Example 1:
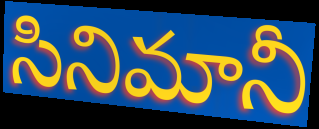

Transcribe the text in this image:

సినిమానీ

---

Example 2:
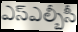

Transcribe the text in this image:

ఎస్ఎల్బీసీ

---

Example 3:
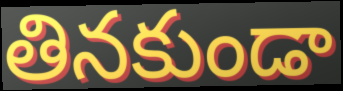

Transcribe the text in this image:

తినకుండా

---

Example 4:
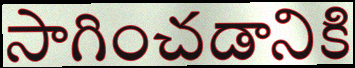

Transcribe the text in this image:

సాగించడానికి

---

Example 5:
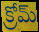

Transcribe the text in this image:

క్రోమ్